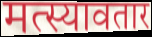
मत्स्यावतार